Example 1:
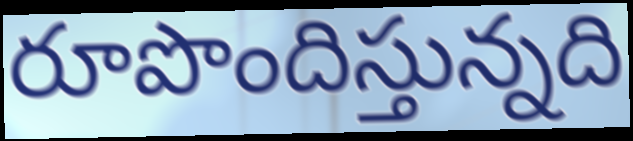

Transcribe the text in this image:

రూపొందిస్తున్నది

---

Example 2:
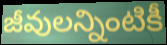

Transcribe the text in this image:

జీవులన్నింటికీ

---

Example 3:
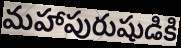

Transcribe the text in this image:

మహాపురుషుడికి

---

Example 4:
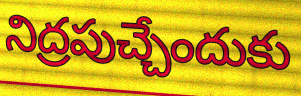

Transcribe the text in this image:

నిద్రపుచ్చేందుకు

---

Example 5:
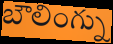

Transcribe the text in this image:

బౌలింగ్ను